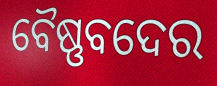
ବୈଷ୍ଣବଦେର